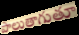
పాలుతాగుతూ